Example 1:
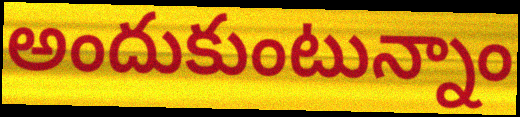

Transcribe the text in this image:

అందుకుంటున్నాం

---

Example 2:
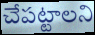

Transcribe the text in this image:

చేపట్టాలని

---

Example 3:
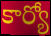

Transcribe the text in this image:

కార్యో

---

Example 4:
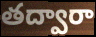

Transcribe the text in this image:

తద్వారా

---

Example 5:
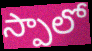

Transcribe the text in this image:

స్పాలో